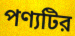
পণ্যটির